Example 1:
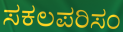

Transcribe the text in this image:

ಸಕಲಪರಿಸಂ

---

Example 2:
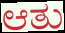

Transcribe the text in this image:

ಆತು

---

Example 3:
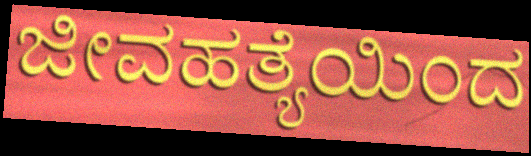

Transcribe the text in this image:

ಜೀವಹತ್ಯೆಯಿಂದ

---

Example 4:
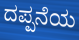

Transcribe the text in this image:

ದಪ್ಪನೆಯ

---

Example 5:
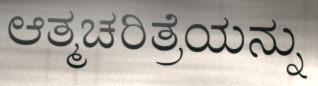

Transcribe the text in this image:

ಆತ್ಮಚರಿತ್ರೆಯನ್ನು